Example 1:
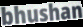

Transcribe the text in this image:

bhushan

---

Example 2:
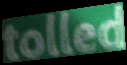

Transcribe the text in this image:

tolled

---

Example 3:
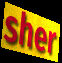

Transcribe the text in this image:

sher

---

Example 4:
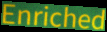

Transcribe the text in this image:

Enriched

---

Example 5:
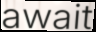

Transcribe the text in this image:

await